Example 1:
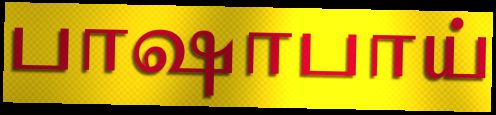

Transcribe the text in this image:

பாஷாபாய்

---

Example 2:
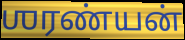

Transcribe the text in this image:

ஶரண்யன்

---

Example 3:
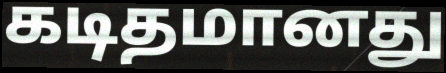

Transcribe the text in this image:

கடிதமானது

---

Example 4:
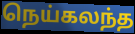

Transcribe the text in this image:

நெய்கலந்த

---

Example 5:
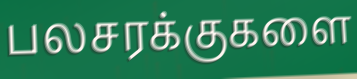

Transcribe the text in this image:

பலசரக்குகளை